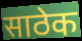
साठेक